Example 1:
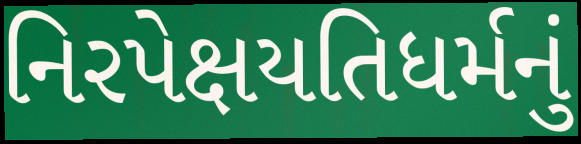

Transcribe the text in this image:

નિરપેક્ષયતિધર્મનું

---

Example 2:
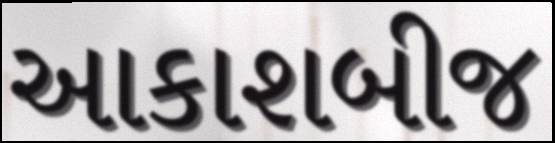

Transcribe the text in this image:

આકાશબીજ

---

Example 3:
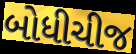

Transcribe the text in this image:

બોધીચીજ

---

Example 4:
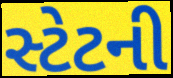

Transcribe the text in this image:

સ્ટેટની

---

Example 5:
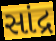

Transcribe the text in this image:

સાંદ્ર